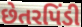
છેતરપિંડી